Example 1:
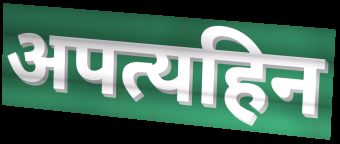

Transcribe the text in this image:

अपत्यहिन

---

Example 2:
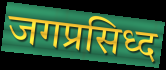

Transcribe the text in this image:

जगप्रसिध्द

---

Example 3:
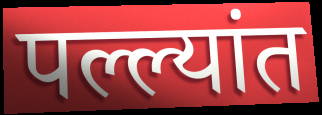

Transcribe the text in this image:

पल्ल्यांत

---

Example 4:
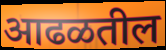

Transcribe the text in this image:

आढळतील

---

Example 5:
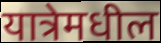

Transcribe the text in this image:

यात्रेमधील